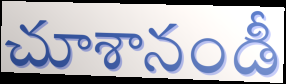
చూశానండీ